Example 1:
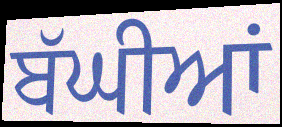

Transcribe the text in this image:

ਬੱਘੀਆਂ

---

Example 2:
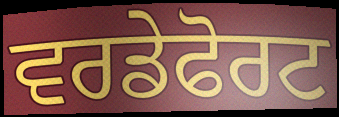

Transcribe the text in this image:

ਵਰਡੇਫੋਰਟ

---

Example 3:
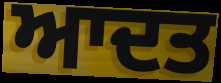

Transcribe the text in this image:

ਆਦਤ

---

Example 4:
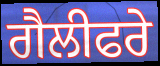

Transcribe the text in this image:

ਗੈਲੀਫਰੇ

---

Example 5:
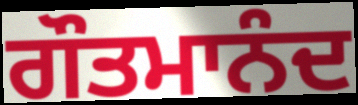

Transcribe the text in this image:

ਗੌਤਮਾਨੰਦ